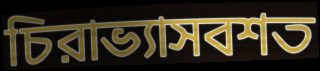
চিরাভ্যাসবশত